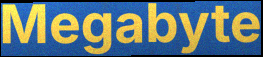
Megabyte